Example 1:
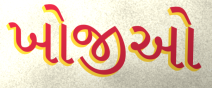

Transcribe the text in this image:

ખોજીઓ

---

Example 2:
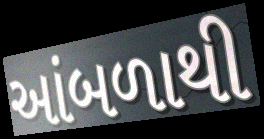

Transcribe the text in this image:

આંબળાથી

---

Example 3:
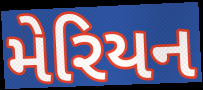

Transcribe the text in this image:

મેરિયન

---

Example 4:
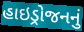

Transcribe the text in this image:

હાઇડ્રોજનનું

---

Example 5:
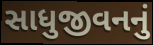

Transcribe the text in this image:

સાધુજીવનનું